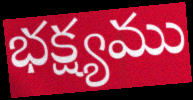
భక్ష్యము